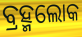
ବ୍ରହ୍ମଲୋକ